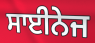
ਸਾਈਨੇਜ